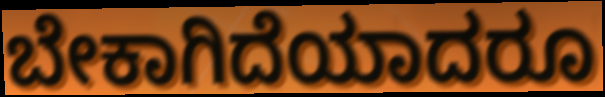
ಬೇಕಾಗಿದೆಯಾದರೂ